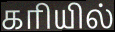
கரியில்